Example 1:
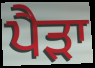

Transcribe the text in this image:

ਪੈੜਾ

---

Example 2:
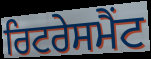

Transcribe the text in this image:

ਰਿਟਰੇਸਮੈਂਟ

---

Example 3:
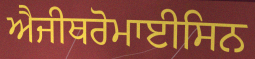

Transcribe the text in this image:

ਐਜੀਥਰੋਮਾਈਸਿਨ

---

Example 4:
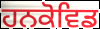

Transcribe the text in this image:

ਹਨਕੋਵਿਡ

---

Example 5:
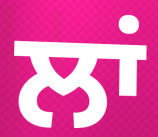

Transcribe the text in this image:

ਲਾਂ